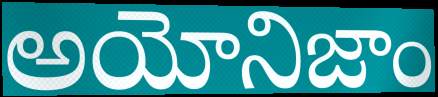
అయోనిజాం